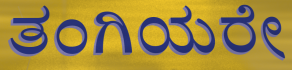
ತಂಗಿಯರೇ